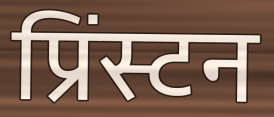
प्रिंस्टन